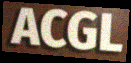
ACGL